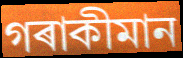
গৰাকীমান